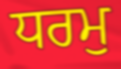
ਧਰਮੁ